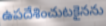
ఉపదేశించుటకైనను